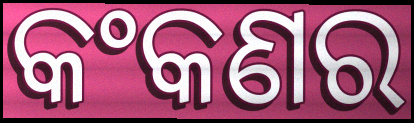
କଂକଣର